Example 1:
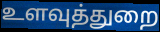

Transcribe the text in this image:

உளவுத்துறை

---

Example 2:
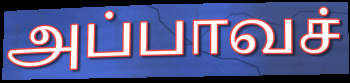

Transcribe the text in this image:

அப்பாவச்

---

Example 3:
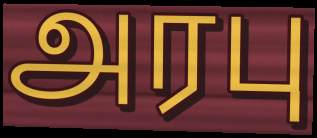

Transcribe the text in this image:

அரபு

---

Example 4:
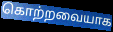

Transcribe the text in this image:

கொற்றவையாக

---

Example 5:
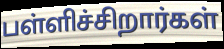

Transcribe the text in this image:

பள்ளிச்சிறார்கள்